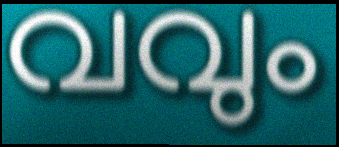
വവും